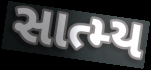
સાત્મ્ય